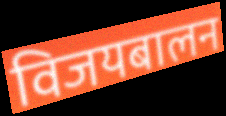
विजयबालन